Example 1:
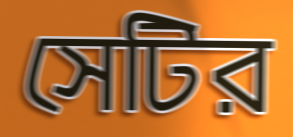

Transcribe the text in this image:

সেটির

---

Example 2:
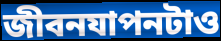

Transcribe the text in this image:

জীবনযাপনটাও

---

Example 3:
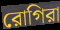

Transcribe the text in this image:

রোগিরা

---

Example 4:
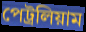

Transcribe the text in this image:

পেট্রলিয়াম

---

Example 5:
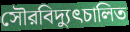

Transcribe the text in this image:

সৌরবিদ্যুৎচালিত